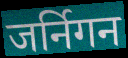
जर्निगन